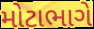
મોટાભાગે